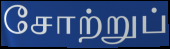
சோற்றுப்